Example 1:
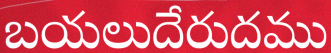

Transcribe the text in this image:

బయలుదేరుదము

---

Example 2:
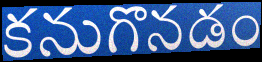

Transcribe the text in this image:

కనుగొనడం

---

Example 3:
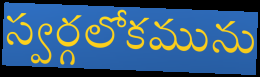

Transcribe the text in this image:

స్వర్గలోకమును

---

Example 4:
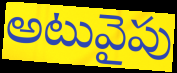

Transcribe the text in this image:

అటువైపు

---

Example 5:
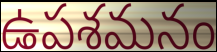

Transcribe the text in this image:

ఉపశమనం